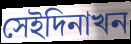
সেইদিনাখন